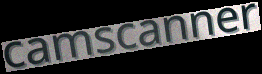
camscanner